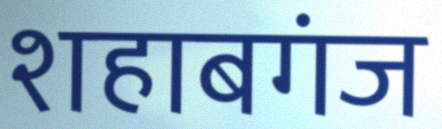
शहाबगंज